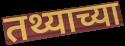
तथ्याच्या